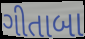
ગીતાબા